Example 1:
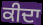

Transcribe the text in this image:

ਕੀਦਾ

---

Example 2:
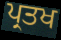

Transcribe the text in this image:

ਪ੍ਰਤਖ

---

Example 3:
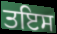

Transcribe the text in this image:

ਤਇਸ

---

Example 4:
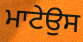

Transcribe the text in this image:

ਮਾਟੇਉਸ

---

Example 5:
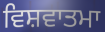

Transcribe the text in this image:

ਵਿਸ਼ਵਾਤਮਾ